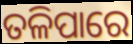
ତଳିପାରେ